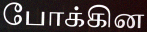
போக்கின